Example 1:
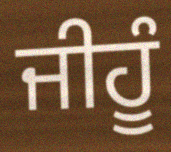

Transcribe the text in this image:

ਜੀਹੂੰ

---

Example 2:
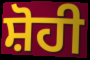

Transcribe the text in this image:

ਸ਼ੋਹੀ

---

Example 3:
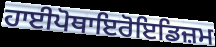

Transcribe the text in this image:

ਹਾਈਪੋਥਾਇਰੋਇਡਿਜ਼ਮ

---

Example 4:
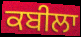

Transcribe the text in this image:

ਕਬੀਲਾ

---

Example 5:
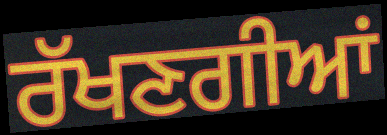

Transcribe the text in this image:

ਰੱਖਣਗੀਆਂ